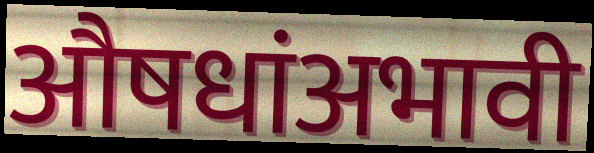
औषधांअभावी